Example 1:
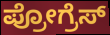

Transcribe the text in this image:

ಪ್ರೋಗ್ರೆಸ್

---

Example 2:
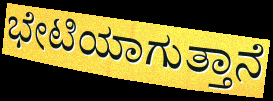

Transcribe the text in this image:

ಭೇಟಿಯಾಗುತ್ತಾನೆ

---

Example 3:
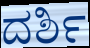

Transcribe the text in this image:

ದರ್ಶಿ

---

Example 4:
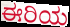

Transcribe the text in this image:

ಈರಿಯ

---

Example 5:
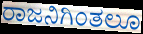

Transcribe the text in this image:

ರಾಜನಿಗಿಂತಲೂ